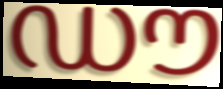
ഡൗ